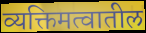
व्यक्तिमत्वातील